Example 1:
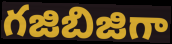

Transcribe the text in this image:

గజిబిజిగా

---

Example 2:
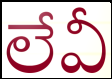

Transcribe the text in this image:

లేవీ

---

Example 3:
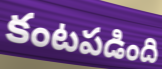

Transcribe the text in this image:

కంటపడింది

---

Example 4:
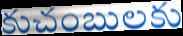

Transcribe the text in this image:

కుచంబులకు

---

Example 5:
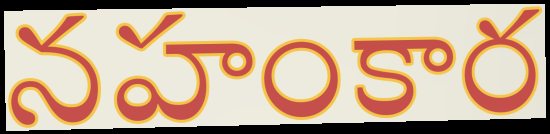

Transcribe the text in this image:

నహంకార